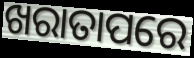
ଖରାତାପରେ